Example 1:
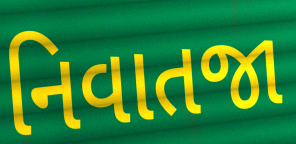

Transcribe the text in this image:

નિવાતજા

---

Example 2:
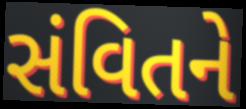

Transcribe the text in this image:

સંવિતને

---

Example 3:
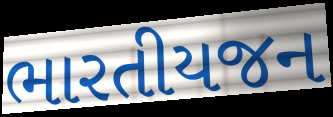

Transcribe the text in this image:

ભારતીયજન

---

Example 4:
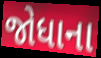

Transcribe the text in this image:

જોધાના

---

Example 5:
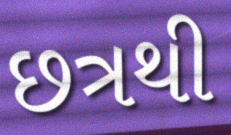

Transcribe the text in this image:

છત્રથી